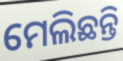
ମେଲିଛନ୍ତି